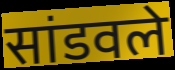
सांडवले